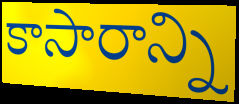
కాసారాన్ని